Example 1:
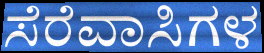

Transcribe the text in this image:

ಸೆರೆವಾಸಿಗಳ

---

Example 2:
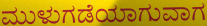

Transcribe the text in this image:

ಮುಳುಗಡೆಯಾಗುವಾಗ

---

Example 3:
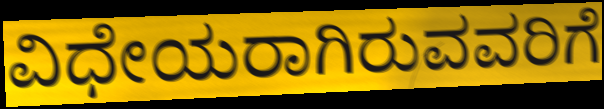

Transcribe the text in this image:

ವಿಧೇಯರಾಗಿರುವವರಿಗೆ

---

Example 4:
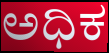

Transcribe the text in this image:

ಅಧಿಕ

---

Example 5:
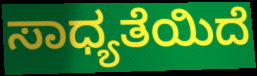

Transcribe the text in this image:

ಸಾಧ್ಯತೆಯಿದೆ